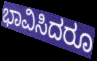
ಭಾವಿಸಿದರೂ